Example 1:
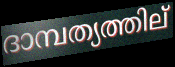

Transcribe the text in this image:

ദാമ്പത്യത്തില്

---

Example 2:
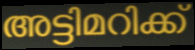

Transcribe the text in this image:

അട്ടിമറിക്ക്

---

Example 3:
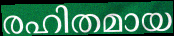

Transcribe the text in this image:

രഹിതമായ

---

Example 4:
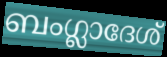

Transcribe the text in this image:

ബംഗ്ലാദേശ്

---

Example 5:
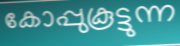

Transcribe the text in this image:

കോപ്പുകൂട്ടുന്ന